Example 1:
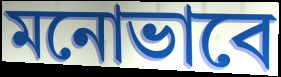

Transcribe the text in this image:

মনোভাবে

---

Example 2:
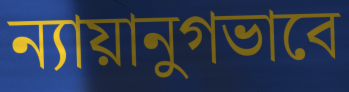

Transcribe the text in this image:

ন্যায়ানুগভাবে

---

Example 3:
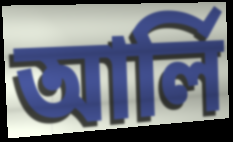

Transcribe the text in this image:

আর্লি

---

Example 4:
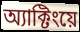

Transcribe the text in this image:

অ্যাক্টিংয়ে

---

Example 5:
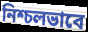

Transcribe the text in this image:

নিশ্চলভাবে